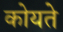
कोयते